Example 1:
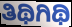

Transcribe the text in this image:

ತಿಥಿಗಿಥಿ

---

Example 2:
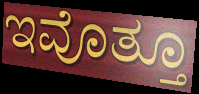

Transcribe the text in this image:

ಇವೊತ್ತೂ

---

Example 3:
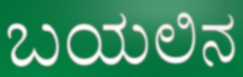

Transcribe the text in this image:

ಬಯಲಿನ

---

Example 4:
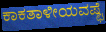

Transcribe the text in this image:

ಕಾಕತಾಳೀಯವಷ್ಟೆ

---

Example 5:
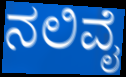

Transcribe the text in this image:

ನಲಿವೈ